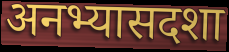
अनभ्यासदशा